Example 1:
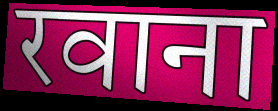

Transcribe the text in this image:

रवाना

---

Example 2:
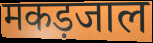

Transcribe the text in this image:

मकड़जाल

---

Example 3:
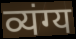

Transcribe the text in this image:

व्यंग्य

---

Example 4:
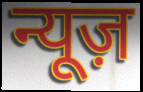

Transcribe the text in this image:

न्यूज़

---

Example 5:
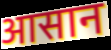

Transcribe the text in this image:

आसान